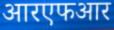
आरएफआर